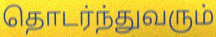
தொடர்ந்துவரும்